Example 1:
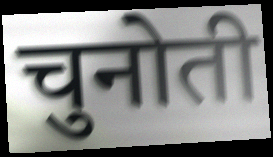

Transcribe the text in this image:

चुनोती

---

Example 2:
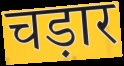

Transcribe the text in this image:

चड़ार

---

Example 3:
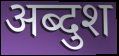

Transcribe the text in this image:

अब्दुश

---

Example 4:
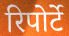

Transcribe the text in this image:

रिपोर्टे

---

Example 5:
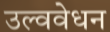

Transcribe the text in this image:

उल्ववेधन